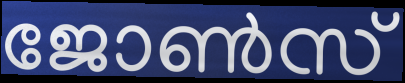
ജോൺസ്